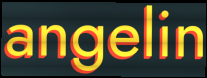
angelin